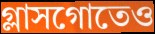
গ্লাসগোতেও